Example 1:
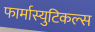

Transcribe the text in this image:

फार्मास्युटिकल्स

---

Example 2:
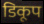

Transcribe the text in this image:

डिकूप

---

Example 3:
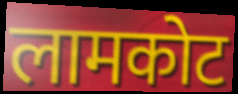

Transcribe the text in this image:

लामकोट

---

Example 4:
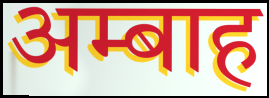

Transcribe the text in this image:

अम्बाह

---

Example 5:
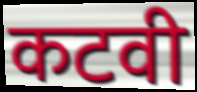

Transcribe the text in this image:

कटवी